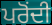
ਪਰੋਂਦੀ